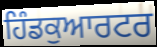
ਹਿੰਡਕੁਆਰਟਰ